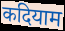
कदियाम